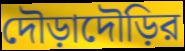
দৌড়াদৌড়ির